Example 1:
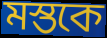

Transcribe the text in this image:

মস্তকে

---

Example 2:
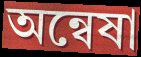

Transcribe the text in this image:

অন্বেষা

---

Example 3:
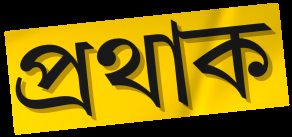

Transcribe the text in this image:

প্ৰথাক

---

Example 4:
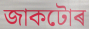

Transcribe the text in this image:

জাকটোৰ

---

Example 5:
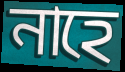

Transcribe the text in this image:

নাহে